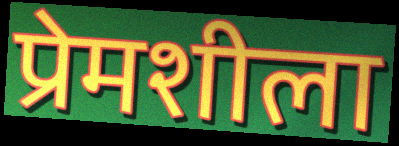
प्रेमशीला